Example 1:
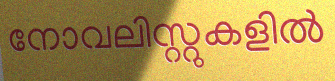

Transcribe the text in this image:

നോവലിസ്റ്റുകളിൽ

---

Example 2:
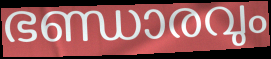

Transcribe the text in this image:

ഭണ്ഡാരവും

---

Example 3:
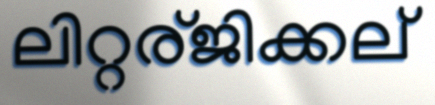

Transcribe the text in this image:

ലിറ്റര്ജിക്കല്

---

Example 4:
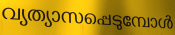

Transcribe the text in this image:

വ്യത്യാസപ്പെടുമ്പോൾ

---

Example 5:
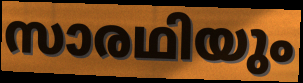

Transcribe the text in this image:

സാരഥിയും